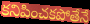
కనిపించకపోతేనే